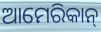
ଆମେରିକାନ୍